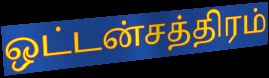
ஒட்டன்சத்திரம்